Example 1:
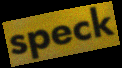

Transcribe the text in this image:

speck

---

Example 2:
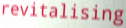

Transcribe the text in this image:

revitalising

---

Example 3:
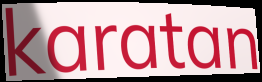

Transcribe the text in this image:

karatan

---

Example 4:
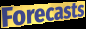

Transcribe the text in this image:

Forecasts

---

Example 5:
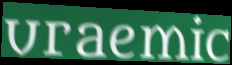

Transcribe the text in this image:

uraemic